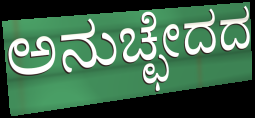
ಅನುಚ್ಛೇದದ